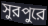
সুরপুরে